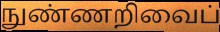
நுண்ணறிவைப்